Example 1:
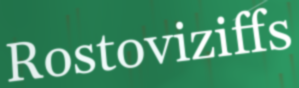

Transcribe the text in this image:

Rostoviziffs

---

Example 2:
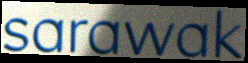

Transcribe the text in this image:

sarawak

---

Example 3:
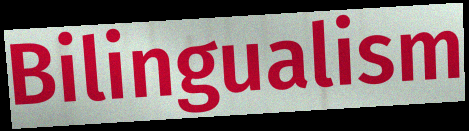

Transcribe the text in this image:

Bilingualism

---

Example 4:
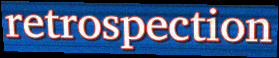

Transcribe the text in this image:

retrospection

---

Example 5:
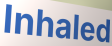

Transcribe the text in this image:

Inhaled